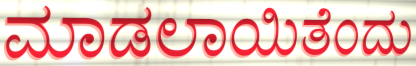
ಮಾಡಲಾಯಿತೆಂದು